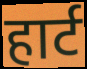
हार्ट